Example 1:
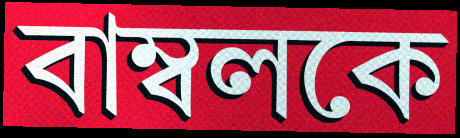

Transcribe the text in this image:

বাম্বলকে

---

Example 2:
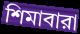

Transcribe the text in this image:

শিমাবারা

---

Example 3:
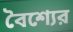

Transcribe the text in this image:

বৈশ্যের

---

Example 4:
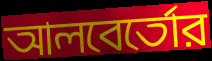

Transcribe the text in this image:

আলবের্তোর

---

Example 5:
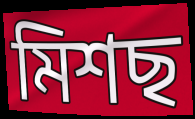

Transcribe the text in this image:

মিশছ